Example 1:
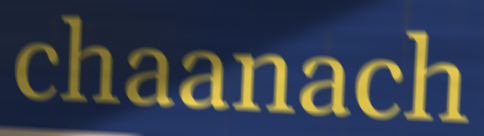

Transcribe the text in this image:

chaanach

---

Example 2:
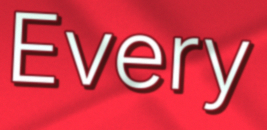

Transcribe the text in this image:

Every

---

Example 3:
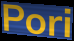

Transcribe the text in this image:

Pori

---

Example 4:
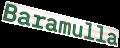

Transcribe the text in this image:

Baramulla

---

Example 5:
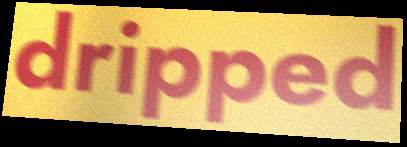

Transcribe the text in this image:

dripped